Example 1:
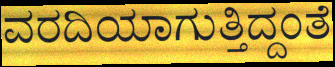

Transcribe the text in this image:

ವರದಿಯಾಗುತ್ತಿದ್ದಂತೆ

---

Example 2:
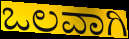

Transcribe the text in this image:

ಒಲವಾಗಿ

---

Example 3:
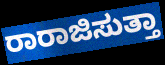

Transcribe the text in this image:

ರಾರಾಜಿಸುತ್ತಾ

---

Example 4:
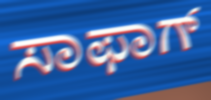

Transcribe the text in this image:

ಸಾಫಾಗ್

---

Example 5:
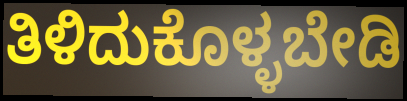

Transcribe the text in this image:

ತಿಳಿದುಕೊಳ್ಳಬೇಡಿ